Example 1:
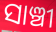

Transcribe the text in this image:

ସାଞ୍ଚୀ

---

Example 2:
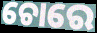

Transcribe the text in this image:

ଚୋରେ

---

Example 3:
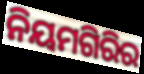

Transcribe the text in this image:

ନିୟମଗିରିର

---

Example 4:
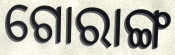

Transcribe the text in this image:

ଗୋରାଙ୍ଗ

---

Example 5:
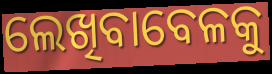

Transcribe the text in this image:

ଲେଖିବାବେଳକୁ